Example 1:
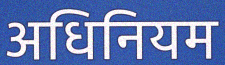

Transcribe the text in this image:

अधिनियम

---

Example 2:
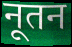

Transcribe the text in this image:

नूतन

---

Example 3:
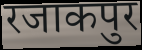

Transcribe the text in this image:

रजाकपुर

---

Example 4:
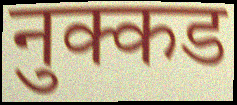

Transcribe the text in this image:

नुक्कड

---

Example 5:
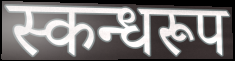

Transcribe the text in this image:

स्कन्धरूप